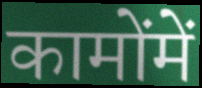
कामोंमें